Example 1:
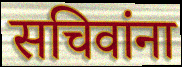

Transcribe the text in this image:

सचिवांना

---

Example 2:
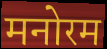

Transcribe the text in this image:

मनोरम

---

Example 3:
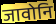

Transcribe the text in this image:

जावोनि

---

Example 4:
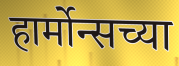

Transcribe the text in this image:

हार्मोन्सच्या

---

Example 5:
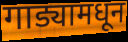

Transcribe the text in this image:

गाड्यामधून